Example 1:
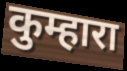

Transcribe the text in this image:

कुम्हारा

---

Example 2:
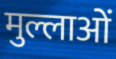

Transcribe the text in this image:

मुल्लाओं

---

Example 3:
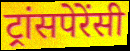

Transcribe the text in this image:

ट्रांसपेरेंसी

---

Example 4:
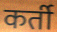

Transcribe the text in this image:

कर्ती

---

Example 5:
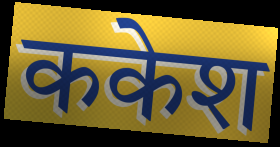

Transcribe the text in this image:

ककेश